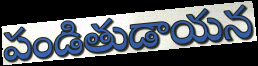
పండితుడాయన